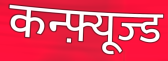
कन्फ़्यूज्ड